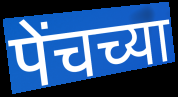
पेंचच्या